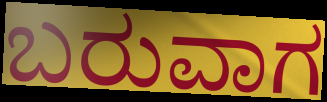
ಬರುವಾಗ